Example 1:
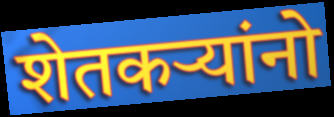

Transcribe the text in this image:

शेतकऱ्यांनो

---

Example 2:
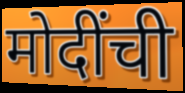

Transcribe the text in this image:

मोदींची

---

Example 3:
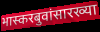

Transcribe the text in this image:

भास्करबुवांसारख्या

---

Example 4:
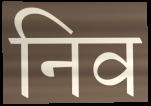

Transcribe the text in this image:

निव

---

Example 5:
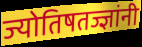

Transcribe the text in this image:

ज्योतिषतज्ज्ञांनी